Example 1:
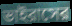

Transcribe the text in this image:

ভাইরাসের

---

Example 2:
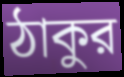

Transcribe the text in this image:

ঠাকুর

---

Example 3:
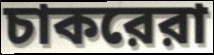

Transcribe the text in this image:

চাকরেরা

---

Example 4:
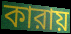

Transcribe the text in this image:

কারায়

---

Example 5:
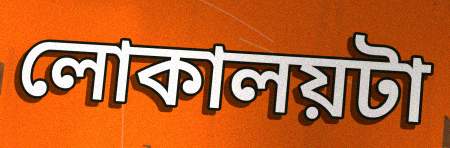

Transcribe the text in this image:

লোকালয়টা